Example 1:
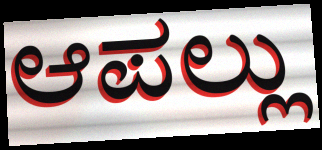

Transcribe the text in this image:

ಆಪಲ್ಲು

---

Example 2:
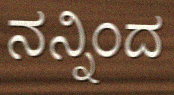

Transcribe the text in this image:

ನನ್ನಿಂದ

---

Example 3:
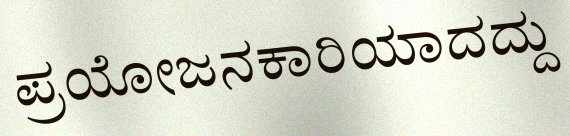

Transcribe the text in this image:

ಪ್ರಯೋಜನಕಾರಿಯಾದದ್ದು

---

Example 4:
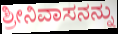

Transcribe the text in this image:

ಶ್ರೀನಿವಾಸನನ್ನು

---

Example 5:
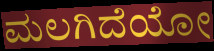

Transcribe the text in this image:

ಮಲಗಿದೆಯೋ